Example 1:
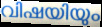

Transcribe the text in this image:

വിഷയിയും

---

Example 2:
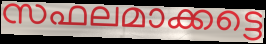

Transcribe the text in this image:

സഫലമാക്കട്ടെ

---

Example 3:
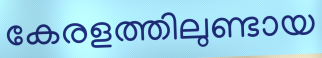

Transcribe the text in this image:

കേരളത്തിലുണ്ടായ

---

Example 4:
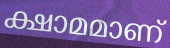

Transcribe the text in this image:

ക്ഷാമമാണ്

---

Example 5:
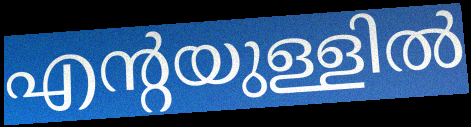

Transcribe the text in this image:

എന്റയുള്ളിൽ